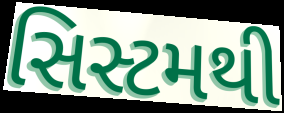
સિસ્ટમથી